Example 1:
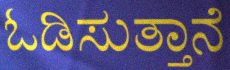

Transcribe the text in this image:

ಓಡಿಸುತ್ತಾನೆ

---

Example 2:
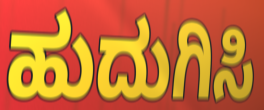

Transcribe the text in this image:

ಹುದುಗಿಸಿ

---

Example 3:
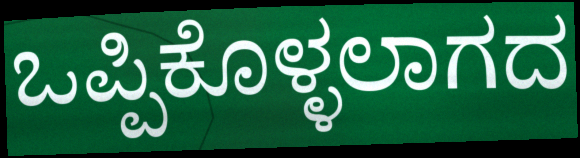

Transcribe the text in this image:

ಒಪ್ಪಿಕೊಳ್ಳಲಾಗದ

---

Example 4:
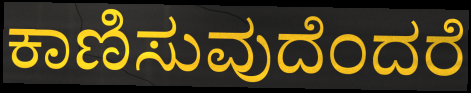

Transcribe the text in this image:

ಕಾಣಿಸುವುದೆಂದರೆ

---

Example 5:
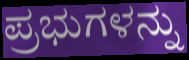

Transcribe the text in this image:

ಪ್ರಭುಗಳನ್ನು